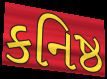
કનિષ્ઠ